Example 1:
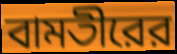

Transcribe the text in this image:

বামতীরের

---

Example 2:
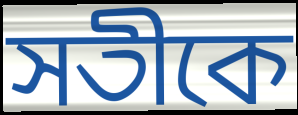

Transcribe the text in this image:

সতীকে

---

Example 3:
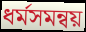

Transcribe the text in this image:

ধর্মসমন্বয়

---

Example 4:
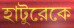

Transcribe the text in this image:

হাটুরেকে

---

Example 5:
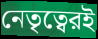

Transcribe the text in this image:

নেতৃত্বেরই